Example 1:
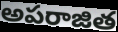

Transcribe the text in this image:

అపరాజిత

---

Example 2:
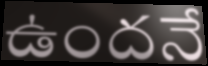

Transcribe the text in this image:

ఉందనే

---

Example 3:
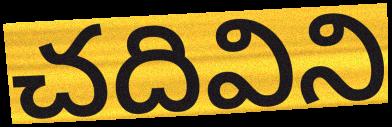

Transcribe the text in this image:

చదివిని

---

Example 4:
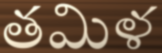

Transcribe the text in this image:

తమిళ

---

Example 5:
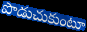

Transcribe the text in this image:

పొడుచుకుంటూ